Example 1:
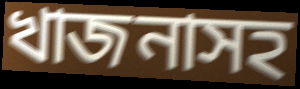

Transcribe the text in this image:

খাজনাসহ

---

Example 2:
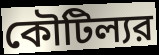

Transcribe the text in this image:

কৌটিল্যর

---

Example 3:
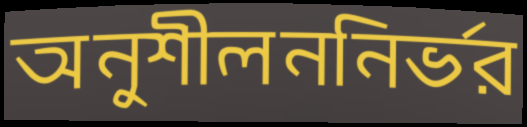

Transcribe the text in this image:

অনুশীলননির্ভর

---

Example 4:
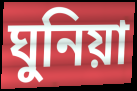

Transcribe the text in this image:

ঘুনিয়া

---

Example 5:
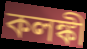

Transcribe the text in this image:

কলঙ্কী